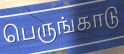
பெருங்காடு